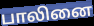
பாலினை